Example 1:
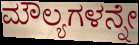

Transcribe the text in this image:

ಮೌಲ್ಯಗಳನ್ನೇ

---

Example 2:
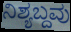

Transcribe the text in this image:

ನಿಶ್ಯಬ್ದವು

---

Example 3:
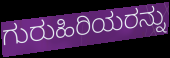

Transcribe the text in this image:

ಗುರುಹಿರಿಯರನ್ನು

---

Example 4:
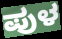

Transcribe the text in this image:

ಪುಳ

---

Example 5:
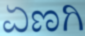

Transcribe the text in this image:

ಏಣಗಿ